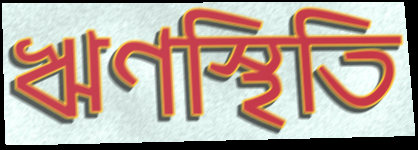
ঋণস্থিতি